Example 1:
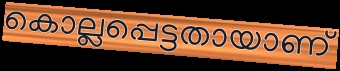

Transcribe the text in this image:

കൊല്ലപ്പെട്ടതായാണ്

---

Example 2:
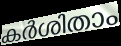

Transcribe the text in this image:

കർശിതാം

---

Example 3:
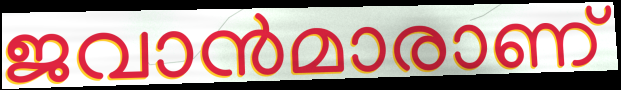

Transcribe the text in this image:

ജവാൻമാരാണ്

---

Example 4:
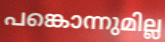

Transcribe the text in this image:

പങ്കൊന്നുമില്ല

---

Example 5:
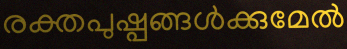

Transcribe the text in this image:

രക്തപുഷ്പങ്ങൾക്കുമേൽ